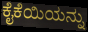
ಕೈಕೆಯಿಯನ್ನು